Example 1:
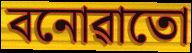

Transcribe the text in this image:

বনোৱাতো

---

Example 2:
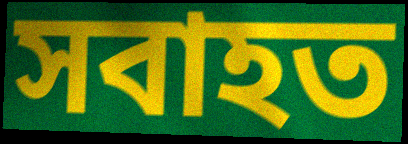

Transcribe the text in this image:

সবাহত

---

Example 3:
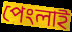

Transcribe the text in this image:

পেংলাই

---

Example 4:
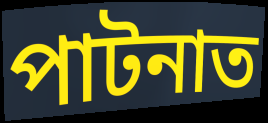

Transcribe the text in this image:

পাটনাত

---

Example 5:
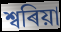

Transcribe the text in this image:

শ্বৰিয়া